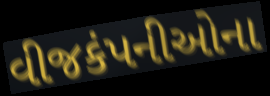
વીજકંપનીઓના